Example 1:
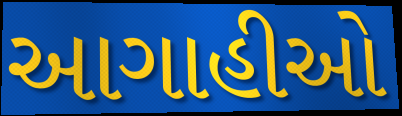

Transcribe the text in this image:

આગાહીઓ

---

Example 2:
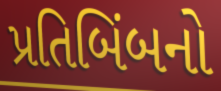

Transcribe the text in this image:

પ્રતિબિંબનો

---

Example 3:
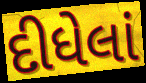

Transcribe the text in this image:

દીધેલાં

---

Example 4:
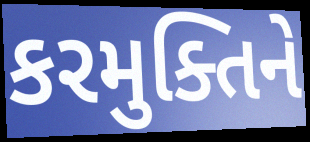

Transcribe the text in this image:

કરમુક્તિને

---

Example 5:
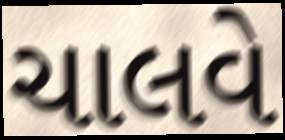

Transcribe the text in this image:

ચાલવે